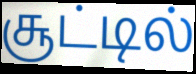
சூட்டில்